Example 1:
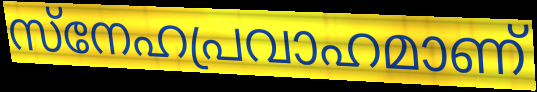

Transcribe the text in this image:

സ്നേഹപ്രവാഹമാണ്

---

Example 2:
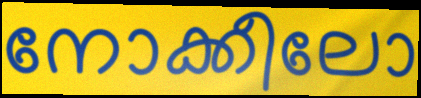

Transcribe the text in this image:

നോക്കീലോ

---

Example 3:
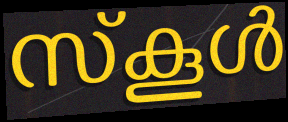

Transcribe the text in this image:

സ്‌കൂൾ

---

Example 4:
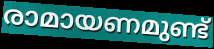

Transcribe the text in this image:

രാമായണമുണ്ട്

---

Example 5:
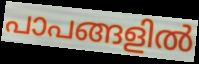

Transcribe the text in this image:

പാപങ്ങളിൽ